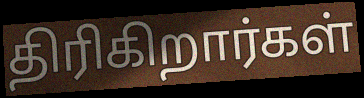
திரிகிறார்கள்